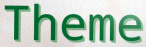
Theme